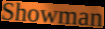
Showman